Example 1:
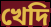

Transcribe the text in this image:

খেদি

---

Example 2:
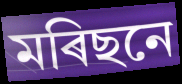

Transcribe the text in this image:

মৰিছনে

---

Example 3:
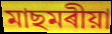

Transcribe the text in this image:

মাছমৰীয়া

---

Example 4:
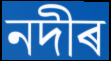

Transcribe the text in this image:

নদীৰ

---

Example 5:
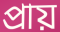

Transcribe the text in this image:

প্ৰায়